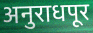
अनुराधपूर